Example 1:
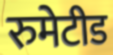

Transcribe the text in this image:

रुमेटीड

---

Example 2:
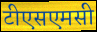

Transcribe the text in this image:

टीएसएमसी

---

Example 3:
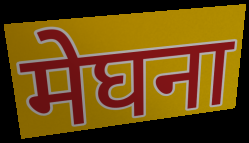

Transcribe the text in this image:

मेघना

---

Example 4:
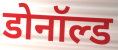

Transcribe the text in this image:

डोनॉल्ड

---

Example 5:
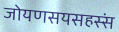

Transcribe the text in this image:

जोयणसयसहस्सं